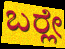
ಬರ್‍ಲೇ